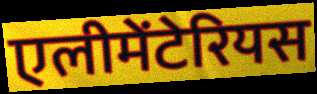
एलीमेंटेरियस